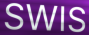
SWIS